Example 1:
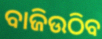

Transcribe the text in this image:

ବାଜିଉଠିବ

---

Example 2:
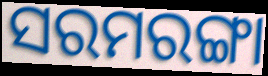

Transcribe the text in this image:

ସରମରଙ୍ଗା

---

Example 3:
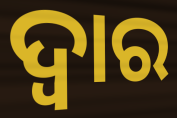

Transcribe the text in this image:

ଦ୍ବାର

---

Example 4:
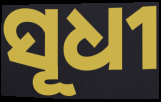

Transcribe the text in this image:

ସୂଧୀ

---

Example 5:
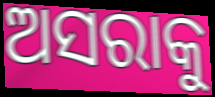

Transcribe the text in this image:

ଅସରାକୁ